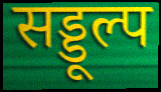
सड्डूल्प